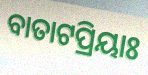
ବାତାଟପ୍ରିୟାଃ